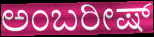
ಅಂಬರೀಷ್